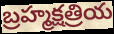
బ్రహ్మక్షత్రియ